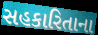
સહકારિતાના